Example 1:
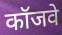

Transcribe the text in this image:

कॉजवे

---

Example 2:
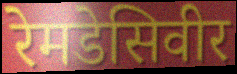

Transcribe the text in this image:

रेमडेसिवीर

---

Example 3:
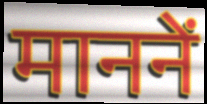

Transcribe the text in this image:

माननें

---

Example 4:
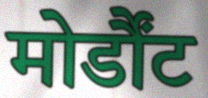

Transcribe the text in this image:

मोर्डौंट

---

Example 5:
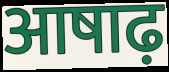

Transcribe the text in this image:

आषाढ़